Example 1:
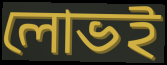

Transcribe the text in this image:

লোভই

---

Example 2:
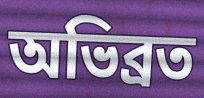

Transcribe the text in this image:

অভিব্রত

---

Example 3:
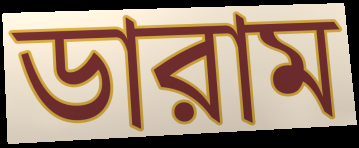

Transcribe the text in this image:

ডারাম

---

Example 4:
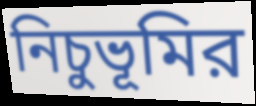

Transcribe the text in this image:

নিচুভূমির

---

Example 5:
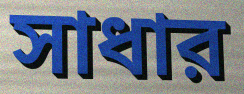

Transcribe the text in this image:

সাধার